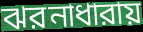
ঝরনাধারায়